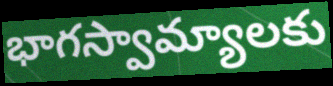
భాగస్వామ్యాలకు